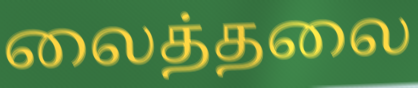
லைத்தலை